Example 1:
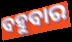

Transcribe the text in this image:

ବହୁବାର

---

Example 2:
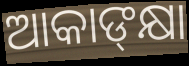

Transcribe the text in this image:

ଆକାଙ୍‌କ୍ଷା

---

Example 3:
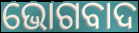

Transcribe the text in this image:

ଭୋଗବାଦ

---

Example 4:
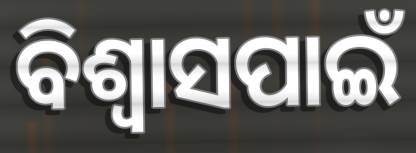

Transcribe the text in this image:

ବିଶ୍ୱାସପାଇଁ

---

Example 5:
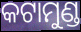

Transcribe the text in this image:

କଟାମୁଣ୍ଡ